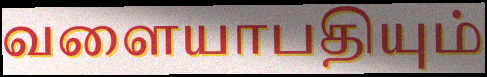
வளையாபதியும்